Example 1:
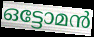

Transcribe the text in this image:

ഒട്ടോമൻ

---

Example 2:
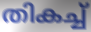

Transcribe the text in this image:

തികച്ച്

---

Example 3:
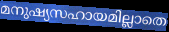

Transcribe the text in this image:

മനുഷ്യസഹായമില്ലാതെ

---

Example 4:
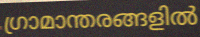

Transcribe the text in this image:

ഗ്രാമാന്തരങ്ങളിൽ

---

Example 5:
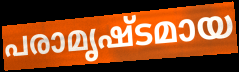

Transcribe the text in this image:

പരാമൃഷ്ടമായ